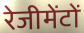
रेजीमेंटों